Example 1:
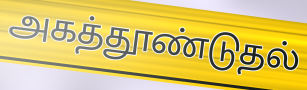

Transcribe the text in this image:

அகத்தூண்டுதல்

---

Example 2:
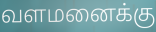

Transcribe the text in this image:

வளமனைக்கு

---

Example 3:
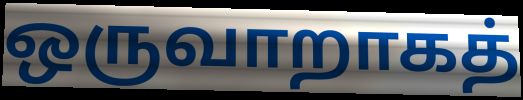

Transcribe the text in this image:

ஒருவாறாகத்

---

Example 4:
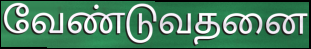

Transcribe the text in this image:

வேண்டுவதனை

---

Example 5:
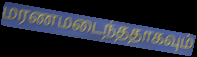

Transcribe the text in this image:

மரணமடைந்ததாகவும்